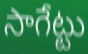
సాగేట్టు